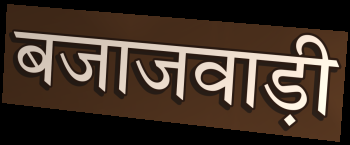
बजाजवाड़ी